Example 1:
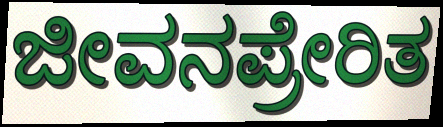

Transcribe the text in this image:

ಜೀವನಪ್ರೇರಿತ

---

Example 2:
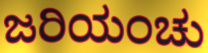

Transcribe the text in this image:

ಜರಿಯಂಚು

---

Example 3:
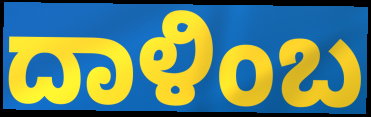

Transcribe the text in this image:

ದಾಳಿಂಬ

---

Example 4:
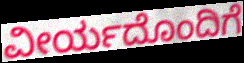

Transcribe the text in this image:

ವೀರ್ಯದೊಂದಿಗೆ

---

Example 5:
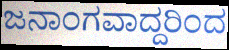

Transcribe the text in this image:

ಜನಾಂಗವಾದ್ದರಿಂದ